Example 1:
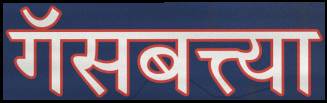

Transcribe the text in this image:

गॅसबत्त्या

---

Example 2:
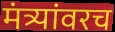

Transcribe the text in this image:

मंत्र्यांवरच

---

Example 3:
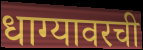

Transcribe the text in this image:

धाग्यावरची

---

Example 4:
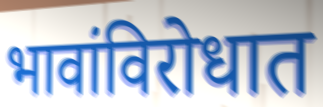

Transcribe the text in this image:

भावांविरोधात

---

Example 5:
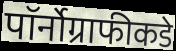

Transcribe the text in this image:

पॉर्नोग्राफीकडे